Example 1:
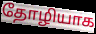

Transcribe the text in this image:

தோழியாக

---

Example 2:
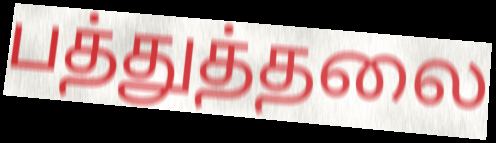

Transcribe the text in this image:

பத்துத்தலை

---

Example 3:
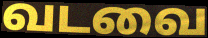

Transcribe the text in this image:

வடவை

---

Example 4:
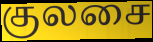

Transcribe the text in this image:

குலசை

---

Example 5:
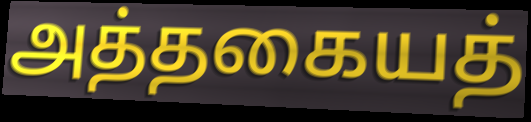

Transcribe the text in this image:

அத்தகையத்